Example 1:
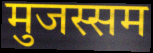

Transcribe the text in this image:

मुजस्सम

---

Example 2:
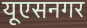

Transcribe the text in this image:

यूएसनगर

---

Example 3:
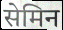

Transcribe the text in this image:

सेमिन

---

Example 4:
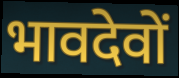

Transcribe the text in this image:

भावदेवों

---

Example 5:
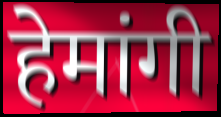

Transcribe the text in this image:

हेमांगी